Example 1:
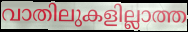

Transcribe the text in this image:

വാതിലുകളില്ലാത്ത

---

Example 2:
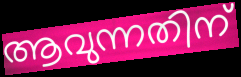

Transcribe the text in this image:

ആവുന്നതിന്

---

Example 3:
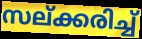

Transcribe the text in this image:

സല്ക്കരിച്ച്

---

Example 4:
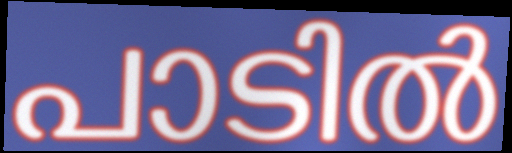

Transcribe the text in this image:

പാടിൽ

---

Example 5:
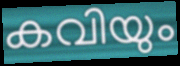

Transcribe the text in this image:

കവിയും